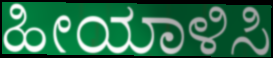
ಹೀಯಾಳಿಸಿ